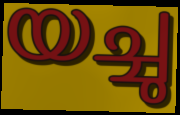
യച്ചു